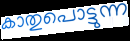
കാതുപൊട്ടുന്ന